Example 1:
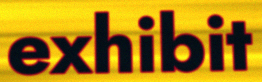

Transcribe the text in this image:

exhibit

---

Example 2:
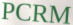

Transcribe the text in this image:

PCRM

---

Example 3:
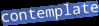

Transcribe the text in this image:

contemplate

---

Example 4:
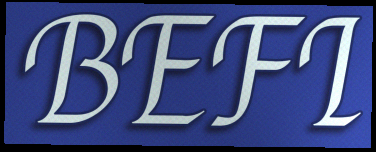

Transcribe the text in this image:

BEFI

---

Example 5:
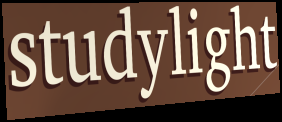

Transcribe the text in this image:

studylight